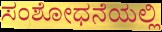
ಸಂಶೋಧನೆಯಲ್ಲಿ